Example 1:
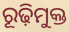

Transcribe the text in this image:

ରୂଢ଼ିମୁକ୍ତ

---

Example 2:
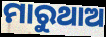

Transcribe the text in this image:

ମାରୁଥାଅ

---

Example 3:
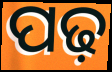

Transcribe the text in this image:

ପଢ଼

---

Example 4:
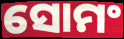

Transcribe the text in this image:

ସୋମଂ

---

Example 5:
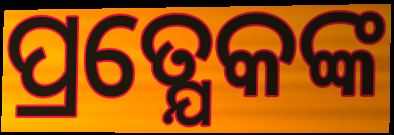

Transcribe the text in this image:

ପ୍ରତ୍ଯେକଙ୍କ